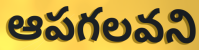
ఆపగలవని